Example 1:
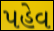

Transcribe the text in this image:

પહેવ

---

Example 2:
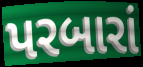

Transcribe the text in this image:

પરબારાં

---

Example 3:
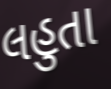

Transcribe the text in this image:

લહુતા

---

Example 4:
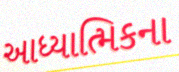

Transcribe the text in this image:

આધ્યાત્મિકના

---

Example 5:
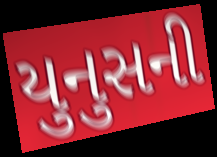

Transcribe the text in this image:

યુનુસની